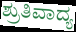
ಶ್ರುತಿವಾದ್ಯ